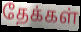
தேக்கள்